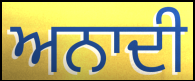
ਅਨਾਦੀ